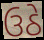
ઉઠે